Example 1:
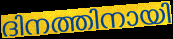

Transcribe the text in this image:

ദിനത്തിനായി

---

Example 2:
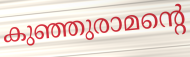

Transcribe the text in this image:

കുഞ്ഞുരാമന്റെ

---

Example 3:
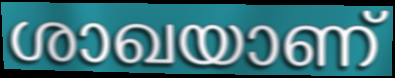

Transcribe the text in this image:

ശാഖയാണ്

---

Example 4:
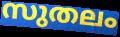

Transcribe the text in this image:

സുതലം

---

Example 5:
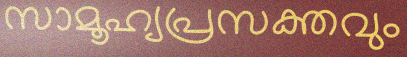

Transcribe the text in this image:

സാമൂഹ്യപ്രസക്തവും